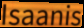
Isaanis